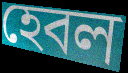
হেবল